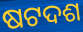
ଷଟଦଶ